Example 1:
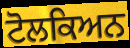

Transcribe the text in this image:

ਟੋਲਕਿਅਨ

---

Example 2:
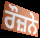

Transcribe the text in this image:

ਰੌਜ਼ਨੇ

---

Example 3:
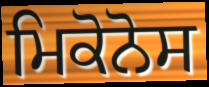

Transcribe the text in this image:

ਮਿਕੋਨੋਸ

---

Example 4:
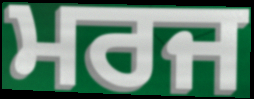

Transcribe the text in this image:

ਮਰਜ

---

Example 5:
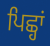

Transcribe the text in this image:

ਪਿਛ੍ਹਾਂ